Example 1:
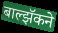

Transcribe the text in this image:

बाल्झॅकने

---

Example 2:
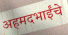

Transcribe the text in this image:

अहमदभाईंचे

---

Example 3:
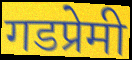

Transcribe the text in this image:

गडप्रेमी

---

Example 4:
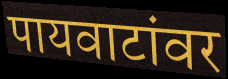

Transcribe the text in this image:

पायवाटांवर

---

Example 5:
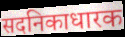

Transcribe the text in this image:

सदनिकाधारक